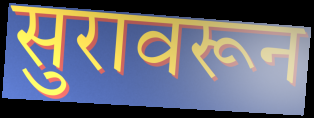
सुरावरून